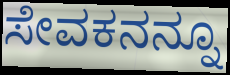
ಸೇವಕನನ್ನೂ